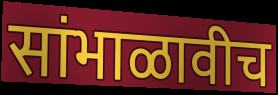
सांभाळावीच